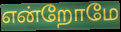
என்றோமே